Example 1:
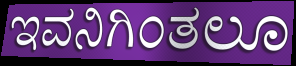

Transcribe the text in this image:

ಇವನಿಗಿಂತಲೂ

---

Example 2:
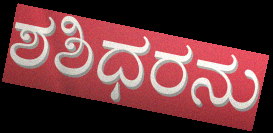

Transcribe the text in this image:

ಶಶಿಧರನು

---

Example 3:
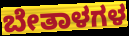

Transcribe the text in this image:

ಬೇತಾಳಗಳ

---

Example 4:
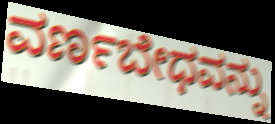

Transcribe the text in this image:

ವರ್ಣಬೇಧವನ್ನು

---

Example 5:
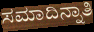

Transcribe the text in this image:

ಸಮಾದಿನ್ನಾತಿ